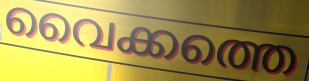
വൈക്കത്തെ